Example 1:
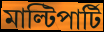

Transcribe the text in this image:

মাল্টিপার্টি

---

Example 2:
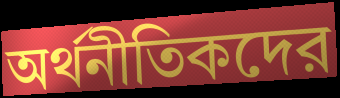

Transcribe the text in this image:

অর্থনীতিকদের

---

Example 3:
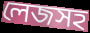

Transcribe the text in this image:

লেজসহ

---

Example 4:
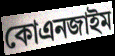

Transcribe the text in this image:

কোএনজাইম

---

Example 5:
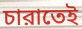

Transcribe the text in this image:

চারাতেই